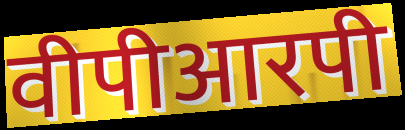
वीपीआरपी